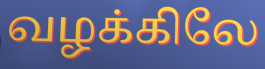
வழக்கிலே